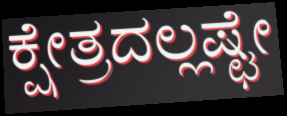
ಕ್ಷೇತ್ರದಲ್ಲಷ್ಟೇ